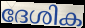
ദേശിക